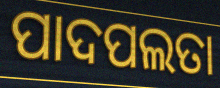
ପାଦପଲତା